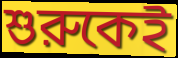
শুরুকেই